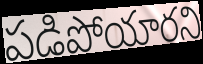
పడిపోయారని